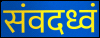
संवदध्वं